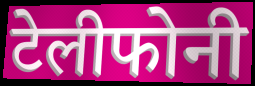
टेलीफोनी